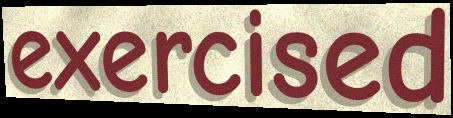
exercised